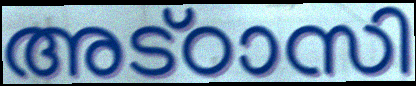
അട്ഠാസി